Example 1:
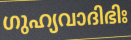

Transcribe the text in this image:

ഗുഹ്യവാദിഭിഃ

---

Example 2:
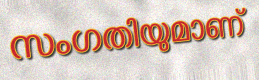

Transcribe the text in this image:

സംഗതിയുമാണ്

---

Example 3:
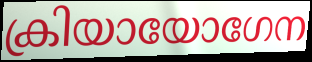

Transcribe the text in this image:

ക്രിയായോഗേന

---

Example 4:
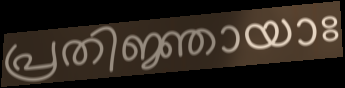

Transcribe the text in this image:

പ്രതിജ്ഞായാഃ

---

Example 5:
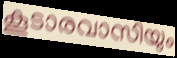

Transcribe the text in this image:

കൂടാരവാസിയും